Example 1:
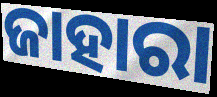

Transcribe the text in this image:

ଜାହାରା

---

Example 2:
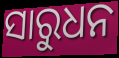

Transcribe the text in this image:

ସାରୁଧନ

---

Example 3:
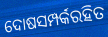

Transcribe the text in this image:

ଦୋଷସମ୍ପର୍କରହିତ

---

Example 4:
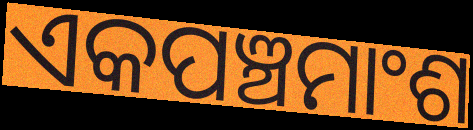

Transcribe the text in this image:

ଏକପଞ୍ଚମାଂଶ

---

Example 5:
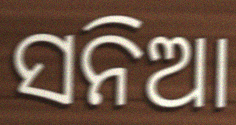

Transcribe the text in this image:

ସନିଆ